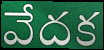
వేదక